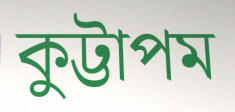
কুট্টাপম